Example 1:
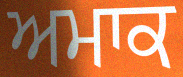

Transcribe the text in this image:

ਅਮਾਕ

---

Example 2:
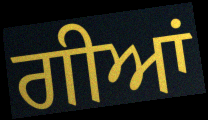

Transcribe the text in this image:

ਗੀਆਂ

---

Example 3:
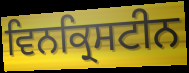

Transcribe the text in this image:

ਵਿਨਕ੍ਰਿਸਟੀਨ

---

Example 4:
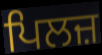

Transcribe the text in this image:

ਪਿਲਜ਼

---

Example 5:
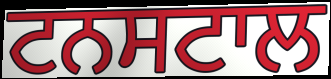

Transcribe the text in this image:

ਟਨਸਟਾਲ